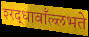
श्रद्धावाँल्लभते